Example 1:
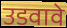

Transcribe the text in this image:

उडवावे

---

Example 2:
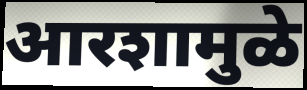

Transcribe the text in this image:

आरशामुळे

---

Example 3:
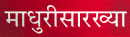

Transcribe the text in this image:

माधुरीसारख्या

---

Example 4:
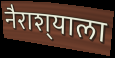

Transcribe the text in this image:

नैराश्याला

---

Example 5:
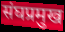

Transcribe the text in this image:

संघप्रमुख